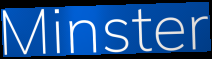
Minster